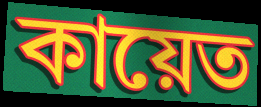
কায়েত